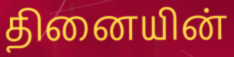
தினையின்